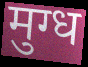
मुग्ध